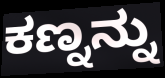
ಕಣ್ನನ್ನು